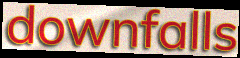
downfalls